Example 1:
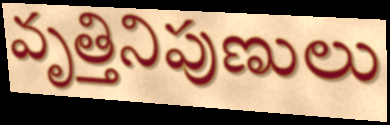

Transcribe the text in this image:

వృత్తినిపుణులు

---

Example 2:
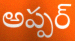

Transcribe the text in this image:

అప్పర్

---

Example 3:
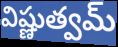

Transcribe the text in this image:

విష్ణుత్వమ్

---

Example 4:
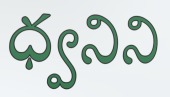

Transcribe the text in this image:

ధ్వనిని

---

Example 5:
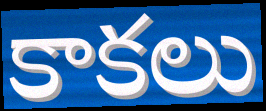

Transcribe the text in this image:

కాకలు